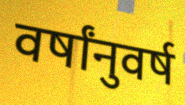
वर्षांनुवर्ष